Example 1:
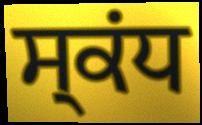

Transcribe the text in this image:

ਸ੍ਕਂਧ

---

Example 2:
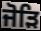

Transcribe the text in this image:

ਜੋੜਿ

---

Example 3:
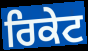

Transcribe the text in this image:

ਰਿਕੇਟ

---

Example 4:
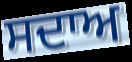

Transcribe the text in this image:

ਸਦਾਅ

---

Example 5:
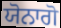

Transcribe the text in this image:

ਯੋਨਾਗੋ